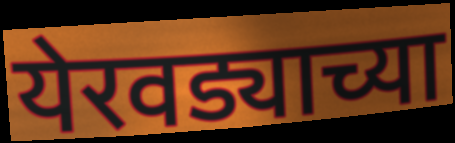
येरवड्याच्या